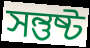
সন্তুষ্ট